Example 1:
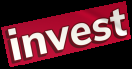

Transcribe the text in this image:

invest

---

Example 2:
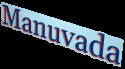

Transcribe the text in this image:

Manuvada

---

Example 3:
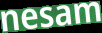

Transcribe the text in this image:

nesam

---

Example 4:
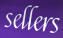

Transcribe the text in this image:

sellers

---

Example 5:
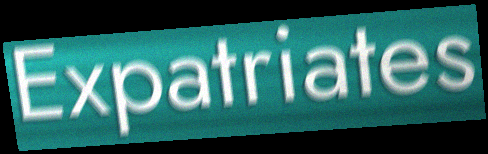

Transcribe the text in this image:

Expatriates